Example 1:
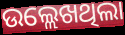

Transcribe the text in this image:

ଉଲ୍ଲେଖଥିଲା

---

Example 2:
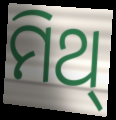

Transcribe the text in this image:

ମିଥ୍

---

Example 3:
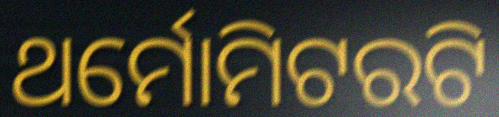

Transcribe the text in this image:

ଥର୍ମୋମିଟରଟି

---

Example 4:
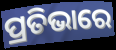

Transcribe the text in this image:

ପ୍ରତିଭାରେ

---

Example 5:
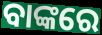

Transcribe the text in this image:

ବାଙ୍କରେ